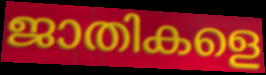
ജാതികളെ